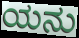
ಯನು